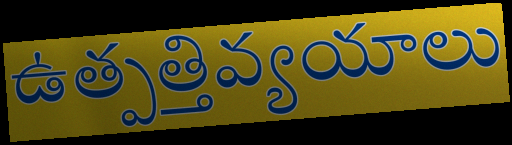
ఉత్పత్తివ్యయాలు